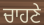
ਚਾਹਣੇ